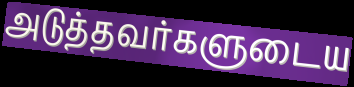
அடுத்தவர்களுடைய